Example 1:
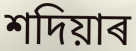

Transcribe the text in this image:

শদিয়াৰ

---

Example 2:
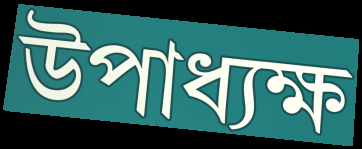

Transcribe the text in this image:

উপাধ্যক্ষ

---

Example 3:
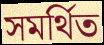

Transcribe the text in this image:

সমৰ্থিত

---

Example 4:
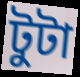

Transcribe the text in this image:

টুটা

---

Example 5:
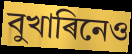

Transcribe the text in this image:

বুখাৰিনেও